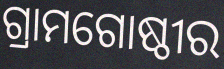
ଗ୍ରାମଗୋଷ୍ଠୀର